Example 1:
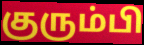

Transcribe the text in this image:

குரும்பி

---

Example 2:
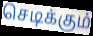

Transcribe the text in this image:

செடிக்கும்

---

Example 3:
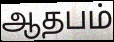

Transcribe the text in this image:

ஆதபம்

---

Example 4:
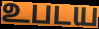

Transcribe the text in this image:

உபடய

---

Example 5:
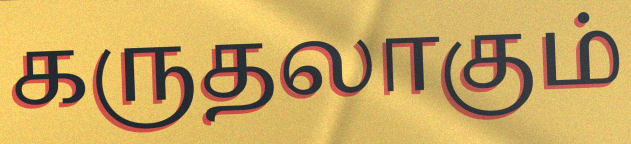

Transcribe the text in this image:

கருதலாகும்